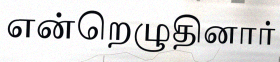
என்றெழுதினார்